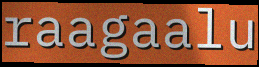
raagaalu